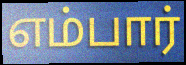
எம்பார்